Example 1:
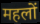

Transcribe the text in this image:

महलों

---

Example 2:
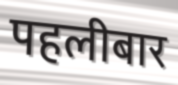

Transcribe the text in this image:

पहलीबार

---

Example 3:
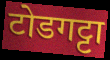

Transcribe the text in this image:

टोडगट्टा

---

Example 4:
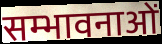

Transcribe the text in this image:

सम्भावनाओं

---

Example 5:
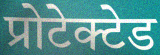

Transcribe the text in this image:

प्रोटेक्टेड